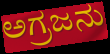
ಅಗ್ರಜನು